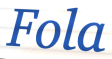
Fola